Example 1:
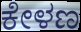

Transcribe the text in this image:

ಕೇಳಣ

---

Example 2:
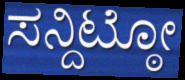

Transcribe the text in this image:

ಸನ್ದಿಟ್ಠೋ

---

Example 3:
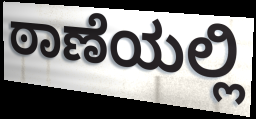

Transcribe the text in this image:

ಠಾಣೆಯಲ್ಲಿ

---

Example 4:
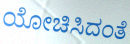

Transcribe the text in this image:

ಯೋಚಿಸಿದಂತೆ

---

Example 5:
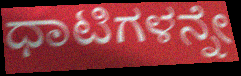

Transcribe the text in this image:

ಧಾಟಿಗಳನ್ನೇ